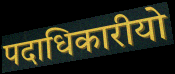
पदाधिकारीयो